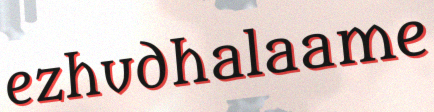
ezhudhalaame